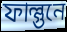
ফাল্গুনে